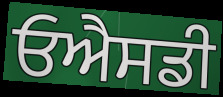
ਓਐਸਡੀ